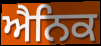
ਐਨਿਕ